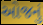
ઓજનું